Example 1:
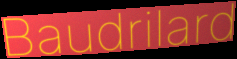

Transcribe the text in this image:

Baudrilard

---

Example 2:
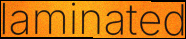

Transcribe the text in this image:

laminated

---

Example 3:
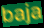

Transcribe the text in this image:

baja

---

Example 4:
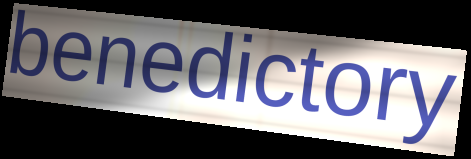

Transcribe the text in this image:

benedictory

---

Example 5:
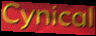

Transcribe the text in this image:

Cynical